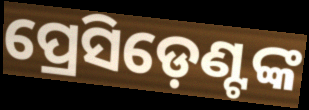
ପ୍ରେସିଡ଼େଣ୍ଟଙ୍କ